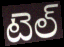
టెల్